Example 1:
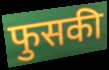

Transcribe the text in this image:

फुसकी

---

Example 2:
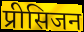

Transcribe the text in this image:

प्रीसिजन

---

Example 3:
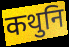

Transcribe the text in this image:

कथुनि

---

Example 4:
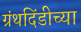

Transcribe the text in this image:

ग्रंथदिंडीच्या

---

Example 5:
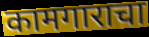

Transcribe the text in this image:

कामगाराचा